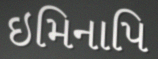
ઇમિનાપિ